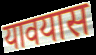
यावयास